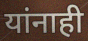
यांनाही